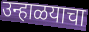
उन्हाळयाचा